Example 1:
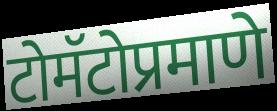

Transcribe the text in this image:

टोमॅटोप्रमाणे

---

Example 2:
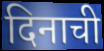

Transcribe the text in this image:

दिनाची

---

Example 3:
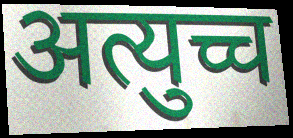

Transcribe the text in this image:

अत्युच्च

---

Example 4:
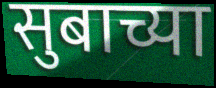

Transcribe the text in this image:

सुबाच्या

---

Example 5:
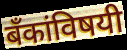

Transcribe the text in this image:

बँकांविषयी